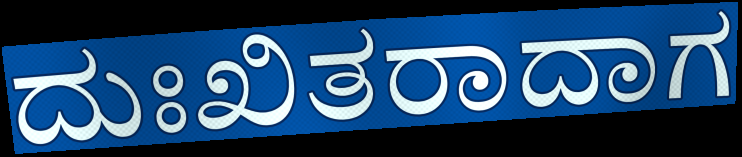
ದುಃಖಿತರಾದಾಗ